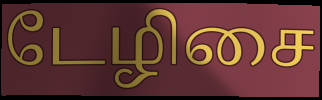
டேழிசை